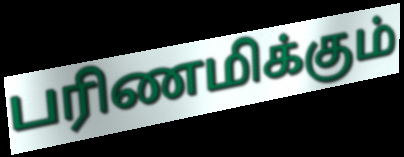
பரிணமிக்கும்